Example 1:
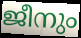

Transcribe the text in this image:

ജീനും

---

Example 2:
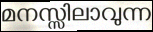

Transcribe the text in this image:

മനസ്സിലാവുന്ന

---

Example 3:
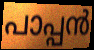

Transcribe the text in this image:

പാപ്പൻ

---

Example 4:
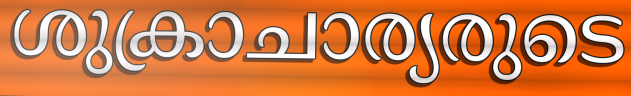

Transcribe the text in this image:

ശുക്രാചാര്യരുടെ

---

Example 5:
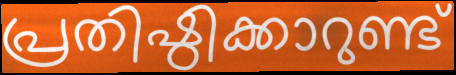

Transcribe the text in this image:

പ്രതിഷ്ഠിക്കാറുണ്ട്